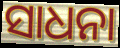
ସାଧନା